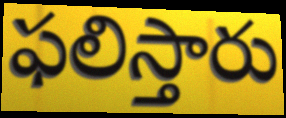
ఫలిస్తారు